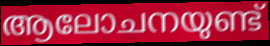
ആലോചനയുണ്ട്